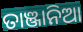
ତାଞ୍ଜାନିଆ